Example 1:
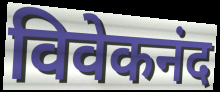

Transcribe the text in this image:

विवेकनंद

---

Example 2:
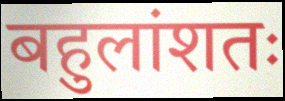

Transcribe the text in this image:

बहुलांशतः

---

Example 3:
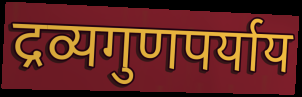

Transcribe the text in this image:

द्रव्यगुणपर्याय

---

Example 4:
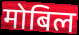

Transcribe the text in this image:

मोबिल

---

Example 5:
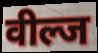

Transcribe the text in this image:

वील्ज